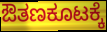
ಔತಣಕೂಟಕ್ಕೆ